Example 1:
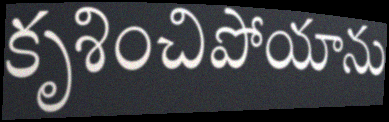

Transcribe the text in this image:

కృశించిపోయాను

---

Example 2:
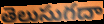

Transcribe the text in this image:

తెలుసుగదా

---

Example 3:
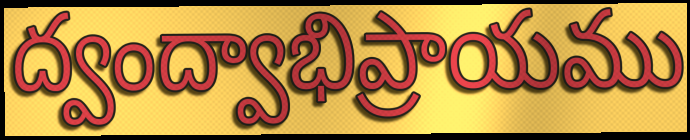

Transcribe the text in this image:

ద్వంద్వాభిప్రాయము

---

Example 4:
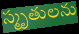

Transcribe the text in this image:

స్మృతులను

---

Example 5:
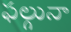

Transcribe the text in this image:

ఫల్గునా